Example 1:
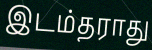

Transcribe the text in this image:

இடம்தராது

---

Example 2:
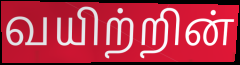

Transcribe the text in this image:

வயிற்றின்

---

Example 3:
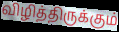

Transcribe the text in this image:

விழித்திருக்கும்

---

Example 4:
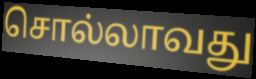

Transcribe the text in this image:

சொல்லாவது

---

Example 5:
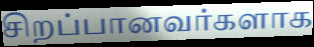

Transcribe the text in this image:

சிறப்பானவர்களாக